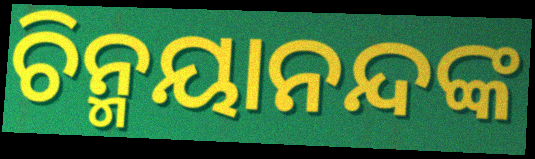
ଚିନ୍ମୟାନନ୍ଦଙ୍କ